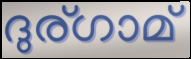
ദുര്ഗാമ്